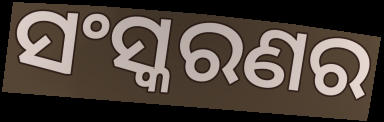
ସଂସ୍କରଣର